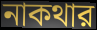
নাকথার